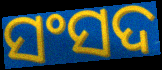
ସଂସଦ